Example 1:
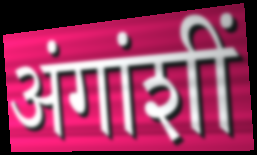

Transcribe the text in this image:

अंगांशीं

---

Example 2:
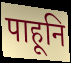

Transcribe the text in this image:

पाहूनि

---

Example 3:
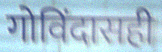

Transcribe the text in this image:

गोविंदासही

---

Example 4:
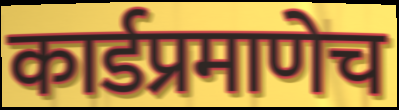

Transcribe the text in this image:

कार्डप्रमाणेच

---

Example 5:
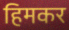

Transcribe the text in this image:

हिमकर